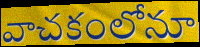
వాచకంలోనూ